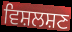
ਵਿਸ਼ਲਸ਼ਣ